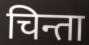
चिन्ता